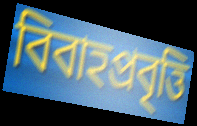
বিবাহপ্রবৃত্তি